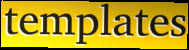
templates